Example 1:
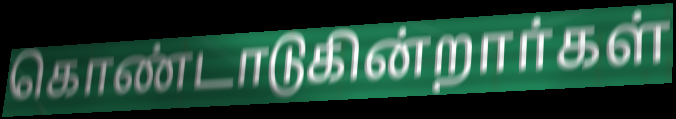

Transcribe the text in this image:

கொண்டாடுகின்றார்கள்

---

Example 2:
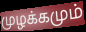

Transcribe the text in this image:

முழக்கமும்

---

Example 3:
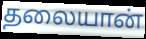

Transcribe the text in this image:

தலையான்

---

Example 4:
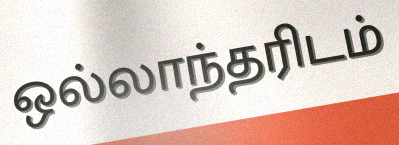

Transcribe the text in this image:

ஒல்லாந்தரிடம்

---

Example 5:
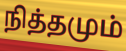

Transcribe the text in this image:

நித்தமும்